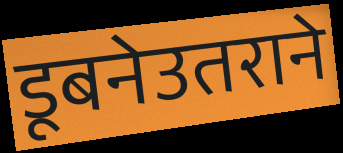
डूबनेउतराने